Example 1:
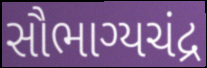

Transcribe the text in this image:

સૌભાગ્યચંદ્ર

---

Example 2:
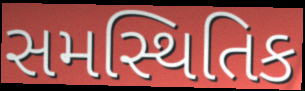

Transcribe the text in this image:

સમસ્થિતિક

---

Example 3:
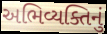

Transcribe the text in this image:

અભિવ્યક્તિનું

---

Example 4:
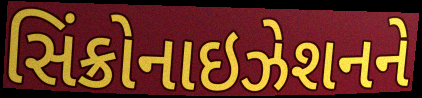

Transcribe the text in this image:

સિંક્રોનાઇઝેશનને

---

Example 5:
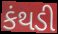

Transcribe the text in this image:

કંથડી